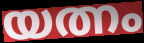
യത്നം